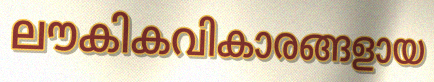
ലൗകികവികാരങ്ങളായ